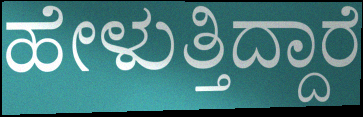
ಹೇಳುತ್ತಿದ್ದಾರೆ